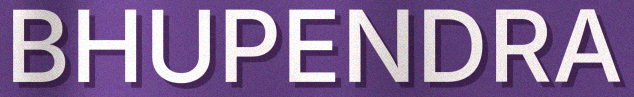
BHUPENDRA